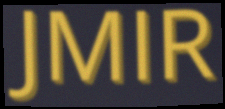
JMIR